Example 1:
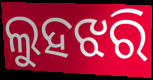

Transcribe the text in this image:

ଲୁହଝରି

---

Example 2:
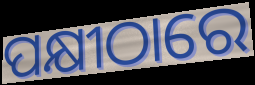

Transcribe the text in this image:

ପକ୍ଷୀଠାରେ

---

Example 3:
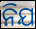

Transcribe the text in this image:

ନିଯ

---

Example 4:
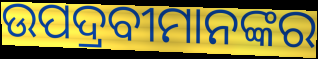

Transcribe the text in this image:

ଉପଦ୍ରବୀମାନଙ୍କର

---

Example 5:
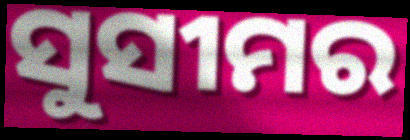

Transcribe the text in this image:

ସୁସୀମର